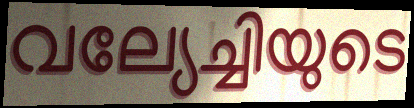
വല്യേച്ചിയുടെ